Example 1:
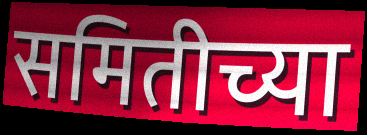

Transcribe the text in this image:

समितीच्या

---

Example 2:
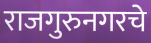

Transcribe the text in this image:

राजगुरुनगरचे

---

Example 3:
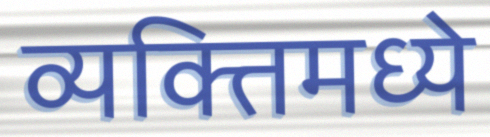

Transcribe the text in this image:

व्यक्तिमध्ये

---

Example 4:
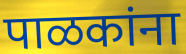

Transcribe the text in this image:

पाळकांना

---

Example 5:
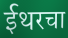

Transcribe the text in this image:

ईथरचा